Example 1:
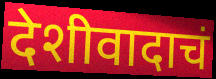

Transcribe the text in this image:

देशीवादाचं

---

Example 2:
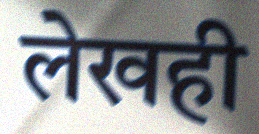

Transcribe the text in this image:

लेखही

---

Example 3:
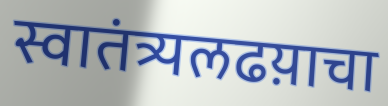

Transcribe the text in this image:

स्वातंत्र्यलढय़ाचा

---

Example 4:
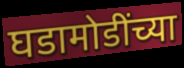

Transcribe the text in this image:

घडामोडींच्या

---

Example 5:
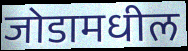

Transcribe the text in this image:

जोडामधील